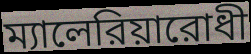
ম্যালেরিয়ারোধী